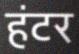
हंटर